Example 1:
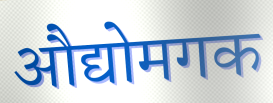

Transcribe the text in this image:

औद्योमगक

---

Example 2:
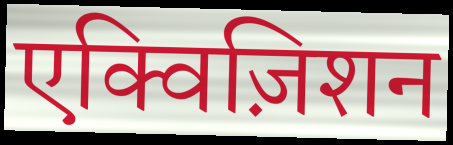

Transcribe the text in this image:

एक्विज़िशन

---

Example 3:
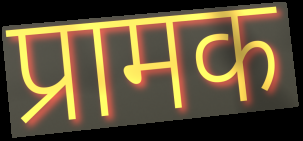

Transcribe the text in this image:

प्रामक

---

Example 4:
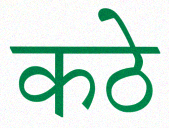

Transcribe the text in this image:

कठे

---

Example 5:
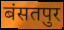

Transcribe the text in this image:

बंसतपुर